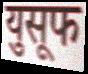
युसूफ